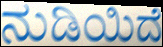
ನುಡಿಯಿದೆ